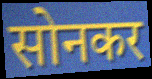
सोनकर